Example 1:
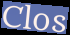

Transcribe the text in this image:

Clos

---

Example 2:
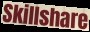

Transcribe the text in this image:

Skillshare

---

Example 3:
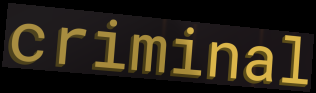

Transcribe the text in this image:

criminal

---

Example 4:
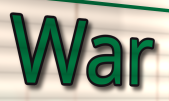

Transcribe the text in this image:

War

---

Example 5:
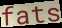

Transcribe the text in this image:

fats